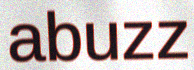
abuzz